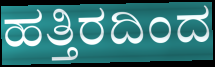
ಹತ್ತಿರದಿಂದ